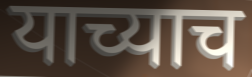
याच्याच